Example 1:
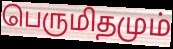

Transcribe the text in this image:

பெருமிதமும்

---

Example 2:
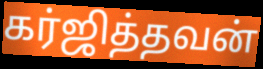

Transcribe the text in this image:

கர்ஜித்தவன்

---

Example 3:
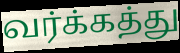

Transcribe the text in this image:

வர்க்கத்து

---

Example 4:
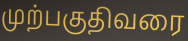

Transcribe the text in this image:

முற்பகுதிவரை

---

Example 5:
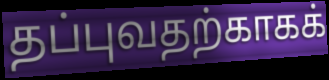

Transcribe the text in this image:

தப்புவதற்காகக்